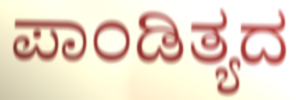
ಪಾಂಡಿತ್ಯದ